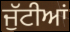
ਜੁੱਟੀਆਂ